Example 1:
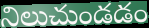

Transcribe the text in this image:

నిలుచుండడం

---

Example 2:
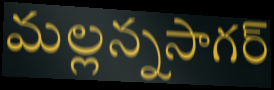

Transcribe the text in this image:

మల్లన్నసాగర్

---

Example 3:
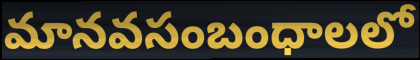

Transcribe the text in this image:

మానవసంబంధాలలో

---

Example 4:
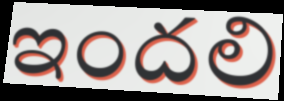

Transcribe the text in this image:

ఇందలి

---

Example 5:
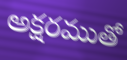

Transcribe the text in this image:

అక్షరముతో